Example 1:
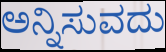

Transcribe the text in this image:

ಅನ್ನಿಸುವದು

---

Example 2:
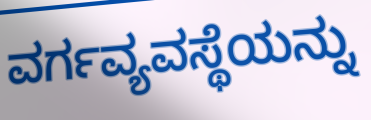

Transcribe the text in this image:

ವರ್ಗವ್ಯವಸ್ಥೆಯನ್ನು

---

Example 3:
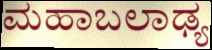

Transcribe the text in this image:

ಮಹಾಬಲಾಢ್ಯ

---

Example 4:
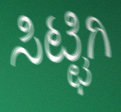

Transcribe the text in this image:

ಸಿಟ್ಟಿಗಿ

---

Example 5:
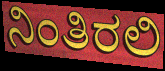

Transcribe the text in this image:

ನಿಂತಿರಲಿ